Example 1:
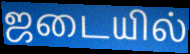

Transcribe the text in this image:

ஜடையில்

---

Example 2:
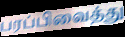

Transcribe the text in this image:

பரப்பிவைத்து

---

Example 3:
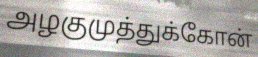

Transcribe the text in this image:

அழகுமுத்துக்கோன்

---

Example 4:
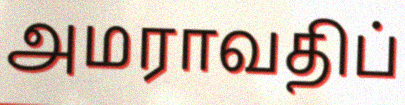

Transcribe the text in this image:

அமராவதிப்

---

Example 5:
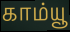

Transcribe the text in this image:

காம்யூ